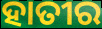
ହାତୀର